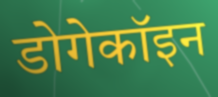
डोगेकॉइन